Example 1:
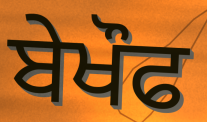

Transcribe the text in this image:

ਬੇਖੌਫ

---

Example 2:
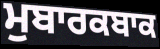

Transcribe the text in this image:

ਮੁਬਾਰਕਬਾਕ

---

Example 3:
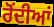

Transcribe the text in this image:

ਰੋਂਦੀਆਂ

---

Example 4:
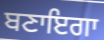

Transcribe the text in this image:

ਬਣਾਇਗਾ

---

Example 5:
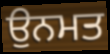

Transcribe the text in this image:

ਉਨਮਤ